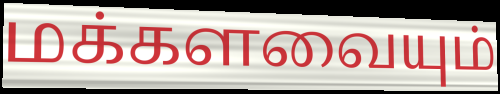
மக்களவையும்